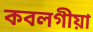
কবলগীয়া